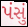
પંસું